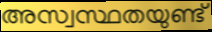
അസ്വസ്ഥതയുണ്ട്